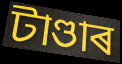
টাণ্ডাৰ